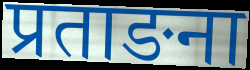
प्रताङना